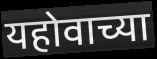
यहोवाच्या